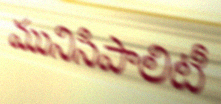
మునిసిపాలిటీ